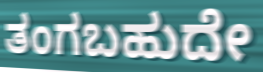
ತಂಗಬಹುದೇ